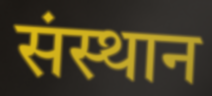
संस्‍थान